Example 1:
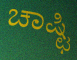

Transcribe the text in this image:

ಚಾಷ್ಟಿ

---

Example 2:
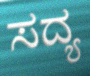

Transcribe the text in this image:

ಸದ್ಯ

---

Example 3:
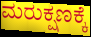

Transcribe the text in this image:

ಮರುಕ್ಷಣಕ್ಕೆ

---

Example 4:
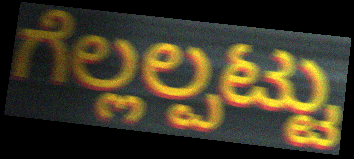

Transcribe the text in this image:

ಗೆಲ್ಲಲ್ಪಟ್ಟು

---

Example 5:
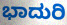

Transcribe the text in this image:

ಭಾದುರಿ